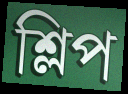
শ্লিপ